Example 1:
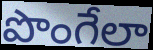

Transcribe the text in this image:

పొంగేలా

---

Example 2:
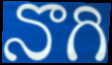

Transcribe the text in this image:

నొగి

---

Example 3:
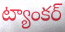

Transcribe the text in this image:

ట్యాంకర్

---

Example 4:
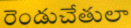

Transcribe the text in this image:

రెండుచేతులా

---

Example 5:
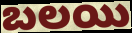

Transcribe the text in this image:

బలయి